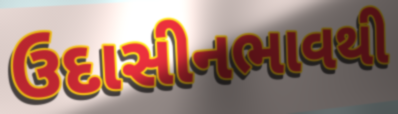
ઉદાસીનભાવથી